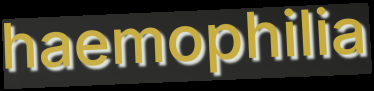
haemophilia